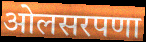
ओलसरपणा